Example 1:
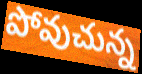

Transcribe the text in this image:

పోవుచున్న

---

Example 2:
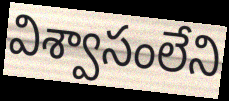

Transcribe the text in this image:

విశ్వాసంలేని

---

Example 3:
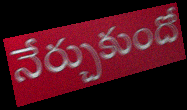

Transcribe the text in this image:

నేర్చుకుందో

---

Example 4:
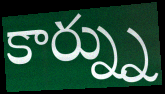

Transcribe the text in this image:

కార్న్ను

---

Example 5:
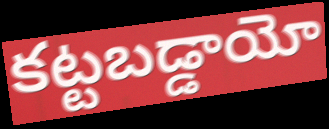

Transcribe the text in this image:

కట్టబడ్డాయో